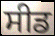
ਸੀਡ